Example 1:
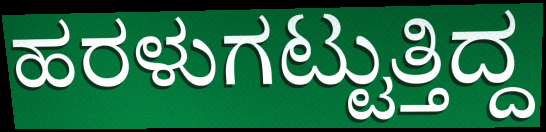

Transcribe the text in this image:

ಹರಳುಗಟ್ಟುತ್ತಿದ್ದ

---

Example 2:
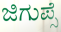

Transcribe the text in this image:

ಜಿಗುಪ್ಸೆ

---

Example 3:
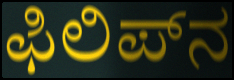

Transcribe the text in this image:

ಫಿಲಿಪ್‌ನ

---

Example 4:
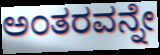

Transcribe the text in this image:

ಅಂತರವನ್ನೇ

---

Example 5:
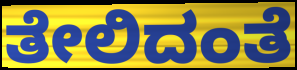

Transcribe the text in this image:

ತೇಲಿದಂತೆ